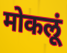
मोकलूं